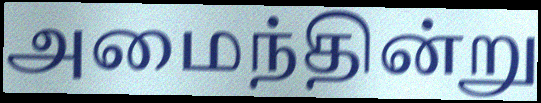
அமைந்தின்று